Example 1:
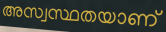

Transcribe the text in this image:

അസ്വസ്ഥതയാണ്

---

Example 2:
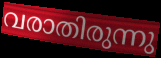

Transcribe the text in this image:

വരാതിരുന്നു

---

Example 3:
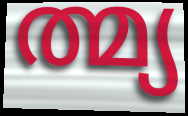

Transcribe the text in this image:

ത്മ്യ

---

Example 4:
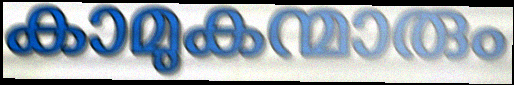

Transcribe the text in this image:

കാമുകന്മാരും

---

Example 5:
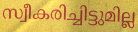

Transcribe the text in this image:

സ്വീകരിച്ചിട്ടുമില്ല